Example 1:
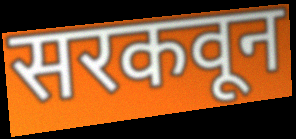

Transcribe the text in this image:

सरकवून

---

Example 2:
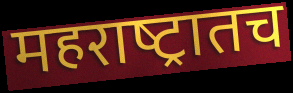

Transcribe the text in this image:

महराष्ट्रातच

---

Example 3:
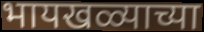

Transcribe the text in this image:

भायखळ्याच्या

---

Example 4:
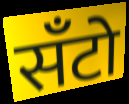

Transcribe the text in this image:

सँटो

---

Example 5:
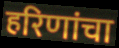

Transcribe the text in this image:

हरिणांचा